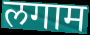
लगाम